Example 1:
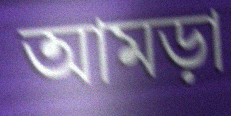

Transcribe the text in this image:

আমড়া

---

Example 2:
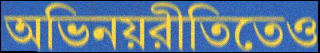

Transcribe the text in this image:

অভিনয়রীতিতেও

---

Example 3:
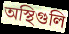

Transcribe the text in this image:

অস্থিগুলি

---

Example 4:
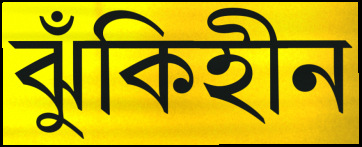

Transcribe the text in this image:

ঝুঁকিহীন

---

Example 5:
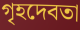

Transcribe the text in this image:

গৃহদেবতা